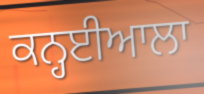
ਕਨ੍ਹਈਆਲਾ